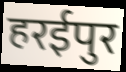
हरईपुर